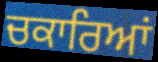
ਚਕਾਰਿਆਂ